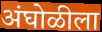
अंघोळीला